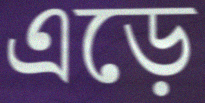
এড়ে